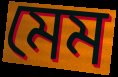
মেম